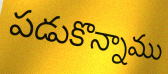
పడుకొన్నాము